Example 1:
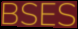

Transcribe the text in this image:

BSES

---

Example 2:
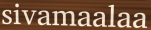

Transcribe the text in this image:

sivamaalaa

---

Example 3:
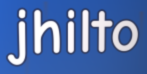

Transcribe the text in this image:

jhilto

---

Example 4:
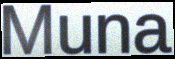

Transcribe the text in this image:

Muna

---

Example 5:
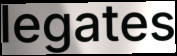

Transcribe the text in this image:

legates